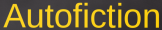
Autofiction